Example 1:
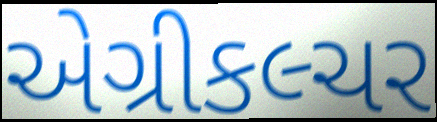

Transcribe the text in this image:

એગ્રીકલ્ચર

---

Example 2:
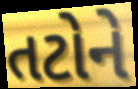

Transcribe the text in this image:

તટોને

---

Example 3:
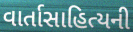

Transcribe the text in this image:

વાર્તાસાહિત્યની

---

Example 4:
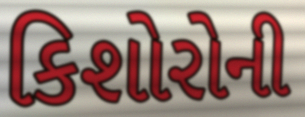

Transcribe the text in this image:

કિશોરોની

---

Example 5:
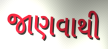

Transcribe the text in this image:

જાણવાથી